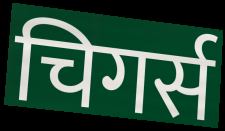
चिगर्स